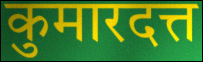
कुमारदत्त